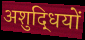
अशुद्धियों